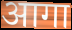
आगा